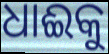
ଧାଈକୁ